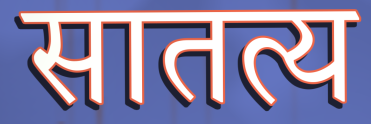
सातत्य